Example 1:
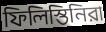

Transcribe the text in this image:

ফিলিস্তিনিরা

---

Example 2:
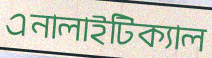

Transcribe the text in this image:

এনালাইটিক্যাল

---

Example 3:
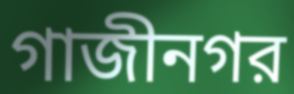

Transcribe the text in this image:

গাজীনগর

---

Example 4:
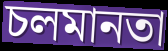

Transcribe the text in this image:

চলমানতা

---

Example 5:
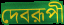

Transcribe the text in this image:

দেবরূপী